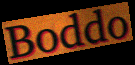
Boddo